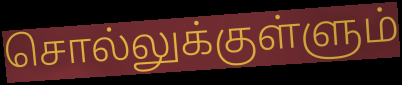
சொல்லுக்குள்ளும்